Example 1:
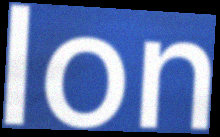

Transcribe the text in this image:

Ion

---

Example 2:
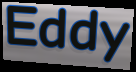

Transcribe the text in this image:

Eddy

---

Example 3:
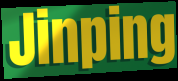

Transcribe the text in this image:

Jinping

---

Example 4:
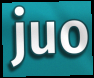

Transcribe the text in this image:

juo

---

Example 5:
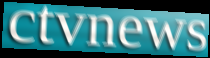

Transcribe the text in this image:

ctvnews